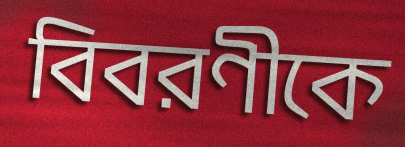
বিবরণীকে